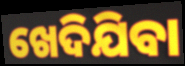
ଖେଦିଯିବା